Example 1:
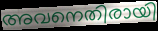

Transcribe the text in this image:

അവനെതിരായി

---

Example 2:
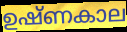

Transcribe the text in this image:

ഉഷ്ണകാല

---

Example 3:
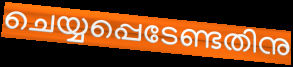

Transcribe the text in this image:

ചെയ്യപ്പെടേണ്ടതിനു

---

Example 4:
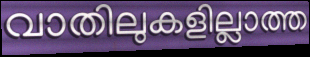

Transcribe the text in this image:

വാതിലുകളില്ലാത്ത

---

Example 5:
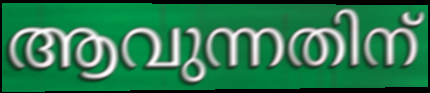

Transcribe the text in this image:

ആവുന്നതിന്